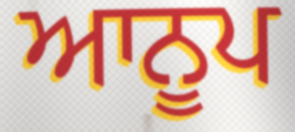
ਆਨੂਪ